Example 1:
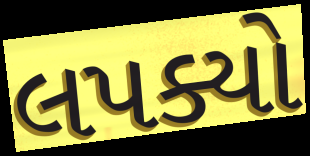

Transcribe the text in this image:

લપક્યો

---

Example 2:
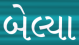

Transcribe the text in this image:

બેલ્યા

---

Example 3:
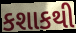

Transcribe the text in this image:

કશાકથી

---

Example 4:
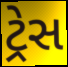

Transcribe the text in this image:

ટ્રેસ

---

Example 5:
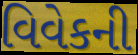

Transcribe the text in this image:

વિવેકની